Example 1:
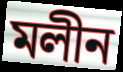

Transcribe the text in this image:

মলীন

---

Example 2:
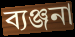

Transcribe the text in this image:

ব্যঞ্জনা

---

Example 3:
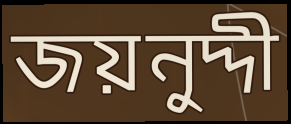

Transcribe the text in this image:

জয়নুদ্দী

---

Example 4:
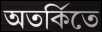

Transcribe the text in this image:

অতর্কিতে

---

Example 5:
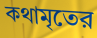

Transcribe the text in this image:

কথামৃতের